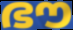
ഭൗ